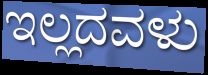
ಇಲ್ಲದವಳು